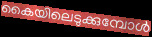
കൈയിലെടുക്കുമ്പോൾ